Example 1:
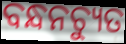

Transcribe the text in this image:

ବନ୍ଧନଚ୍ୟୁତ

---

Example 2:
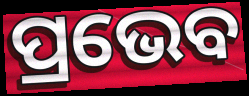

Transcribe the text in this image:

ପ୍ରଭେବ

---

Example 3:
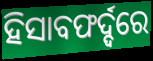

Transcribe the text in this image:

ହିସାବଫର୍ଦ୍ଦରେ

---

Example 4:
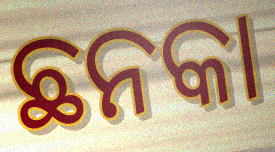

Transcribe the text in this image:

ଛନକା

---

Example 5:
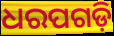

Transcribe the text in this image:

ଧରପଗଡ଼ି